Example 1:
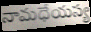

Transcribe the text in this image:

నామధేయస్య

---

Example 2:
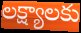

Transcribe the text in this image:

లక్ష్యాలకు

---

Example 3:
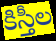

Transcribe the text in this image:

కిస్తీల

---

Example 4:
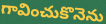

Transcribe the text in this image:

గావించుకొనెను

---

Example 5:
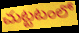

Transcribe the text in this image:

చుట్టటంలో